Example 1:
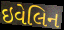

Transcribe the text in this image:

ઇવેલિન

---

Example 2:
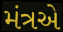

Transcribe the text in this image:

મંત્રએ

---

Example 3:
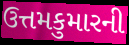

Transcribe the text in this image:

ઉત્તમકુમારની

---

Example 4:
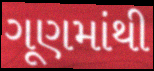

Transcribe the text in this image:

ગૂણમાંથી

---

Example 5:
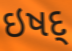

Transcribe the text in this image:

ઇષદ્